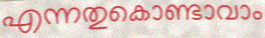
എന്നതുകൊണ്ടാവാം